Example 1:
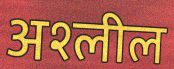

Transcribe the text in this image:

अश्लील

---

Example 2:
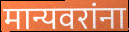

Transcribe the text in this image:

मान्यवरांना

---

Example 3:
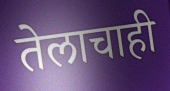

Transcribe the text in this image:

तेलाचाही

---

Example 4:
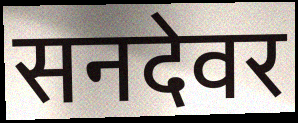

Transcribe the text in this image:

सनदेवर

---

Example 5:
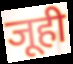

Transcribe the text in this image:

जूही